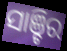
ସାଞ୍ଚିର